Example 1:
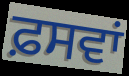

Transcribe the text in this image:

ਫ਼ਸਵਾਂ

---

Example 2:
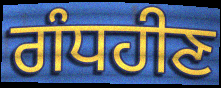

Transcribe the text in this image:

ਗੰਧਹੀਣ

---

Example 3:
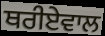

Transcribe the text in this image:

ਥਰੀਏਵਾਲ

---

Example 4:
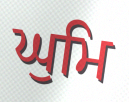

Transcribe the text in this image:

ਘੁਮਿ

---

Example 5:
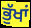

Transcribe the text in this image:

ਭੁੱਖਾਂ